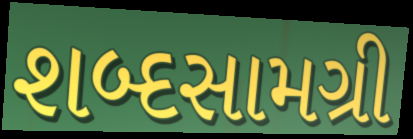
શબ્દસામગ્રી